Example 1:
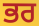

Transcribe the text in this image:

ਭਰ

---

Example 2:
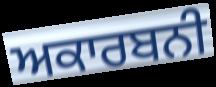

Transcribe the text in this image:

ਅਕਾਰਬਨੀ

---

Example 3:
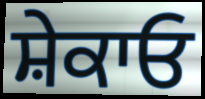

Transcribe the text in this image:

ਸ਼ੇਕਾਓ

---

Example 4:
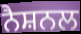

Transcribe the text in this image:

ਨੈਸ਼ਨਲ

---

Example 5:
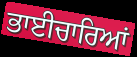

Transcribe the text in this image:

ਭਾਈਚਾਰਿਆਂ